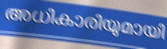
അധികാരിയുമായി